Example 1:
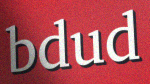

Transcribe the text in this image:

bdud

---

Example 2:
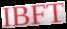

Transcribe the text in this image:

IBFT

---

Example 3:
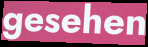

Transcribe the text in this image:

gesehen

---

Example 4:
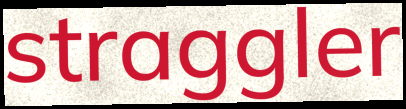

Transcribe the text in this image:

straggler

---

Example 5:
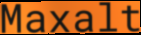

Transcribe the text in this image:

Maxalt